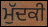
ਮੁੱਦਕੀ